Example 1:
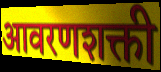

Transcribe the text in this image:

आवरणशक्ती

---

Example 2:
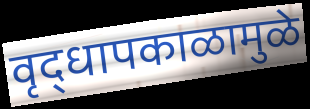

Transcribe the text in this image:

वृद्धापकाळामुळे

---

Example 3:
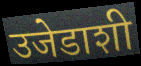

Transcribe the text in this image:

उजेडाशी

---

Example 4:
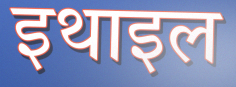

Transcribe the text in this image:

इथाइल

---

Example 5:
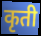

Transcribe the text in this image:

कृती